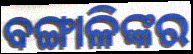
ବଙ୍ଗାଳିଙ୍କର